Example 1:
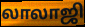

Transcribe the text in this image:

லாலாஜி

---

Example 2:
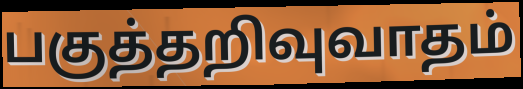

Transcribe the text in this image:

பகுத்தறிவுவாதம்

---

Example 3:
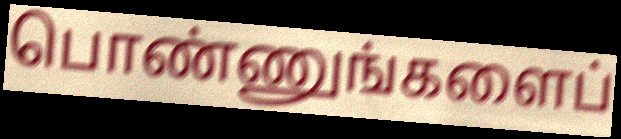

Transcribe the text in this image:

பொண்ணுங்களைப்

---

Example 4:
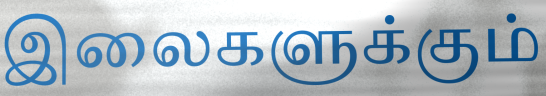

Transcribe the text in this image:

இலைகளுக்கும்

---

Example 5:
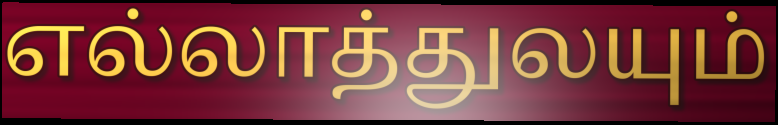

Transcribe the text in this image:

எல்லாத்துலயும்